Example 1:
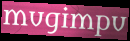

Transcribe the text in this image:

mugimpu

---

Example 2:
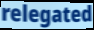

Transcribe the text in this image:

relegated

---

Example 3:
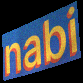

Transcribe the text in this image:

nabi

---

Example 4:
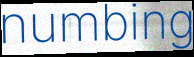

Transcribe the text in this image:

numbing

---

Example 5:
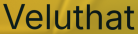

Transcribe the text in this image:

Veluthat